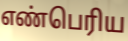
எண்பெரிய